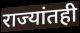
राज्यांतही